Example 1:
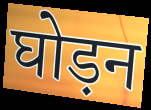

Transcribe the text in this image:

घोड़न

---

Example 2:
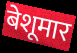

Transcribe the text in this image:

बेशूमार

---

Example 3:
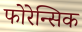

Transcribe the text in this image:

फोरेन्सिक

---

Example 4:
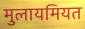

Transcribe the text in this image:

मुलायमियत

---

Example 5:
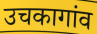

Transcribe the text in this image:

उचकागांव